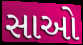
સાઓ